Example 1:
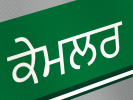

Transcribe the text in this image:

ਕੇਮਲਰ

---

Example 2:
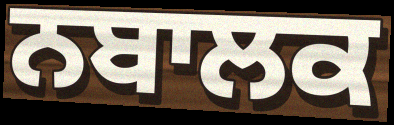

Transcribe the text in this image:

ਨਬਾਲਕ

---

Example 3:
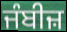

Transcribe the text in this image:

ਜੰਬੀਜ਼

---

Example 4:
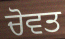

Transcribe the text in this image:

ਚੋਵਤ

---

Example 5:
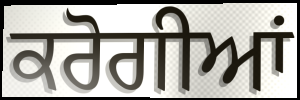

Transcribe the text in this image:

ਕਰੋਗੀਆਂ